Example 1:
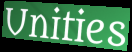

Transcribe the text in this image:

Unities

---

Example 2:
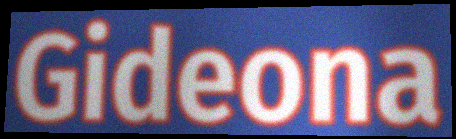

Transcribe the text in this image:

Gideona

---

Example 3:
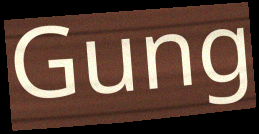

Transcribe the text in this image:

Gung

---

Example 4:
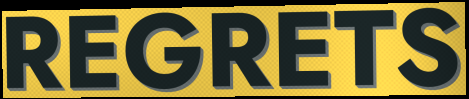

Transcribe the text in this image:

REGRETS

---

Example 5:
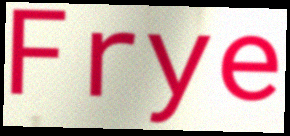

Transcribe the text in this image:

Frye